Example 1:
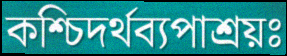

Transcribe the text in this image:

কশ্চিদর্থব্যপাশ্রয়ঃ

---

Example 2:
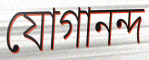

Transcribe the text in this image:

যোগানন্দ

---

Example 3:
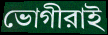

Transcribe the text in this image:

ভোগীরাই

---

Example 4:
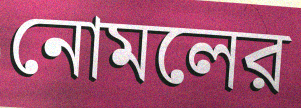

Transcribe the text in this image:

নোমলের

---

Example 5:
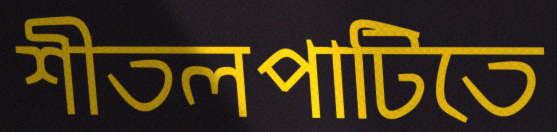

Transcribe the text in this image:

শীতলপাটিতে